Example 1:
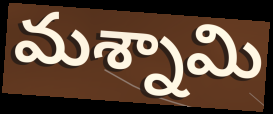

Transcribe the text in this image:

మశ్నామి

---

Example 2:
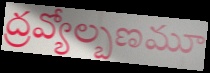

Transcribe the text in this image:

ద్రవ్యోల్బణమూ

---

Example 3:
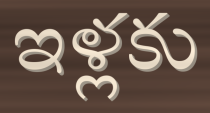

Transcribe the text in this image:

ఇళ్లకు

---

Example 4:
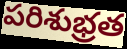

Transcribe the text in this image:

పరిశుభ్రత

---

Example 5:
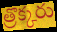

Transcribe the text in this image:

త్రొక్కరు